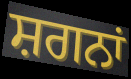
ਸ਼ਗਨਾਂ